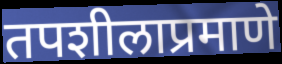
तपशीलाप्रमाणे